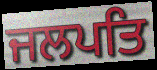
ਜਲਪਤਿ